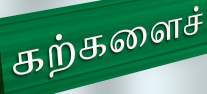
கற்களைச்